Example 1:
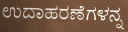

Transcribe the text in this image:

ಉದಾಹರಣೆಗಳನ್ನ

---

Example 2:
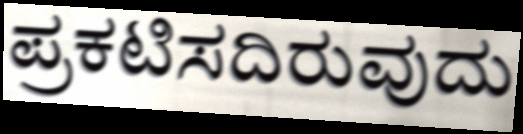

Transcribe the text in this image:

ಪ್ರಕಟಿಸದಿರುವುದು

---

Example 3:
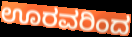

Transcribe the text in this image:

ಊರವರಿಂದ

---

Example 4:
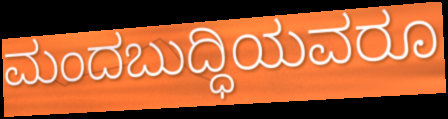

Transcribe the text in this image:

ಮಂದಬುದ್ಧಿಯವರೂ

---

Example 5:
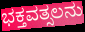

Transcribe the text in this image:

ಭಕ್ತವತ್ಸಲನು